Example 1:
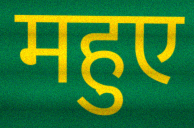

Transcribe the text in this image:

महुए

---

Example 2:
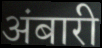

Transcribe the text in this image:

अंबारी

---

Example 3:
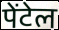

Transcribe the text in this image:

पेंटेल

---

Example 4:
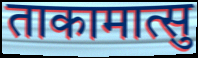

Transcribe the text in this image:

ताकामात्सु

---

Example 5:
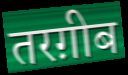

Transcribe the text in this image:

तरग़ीब